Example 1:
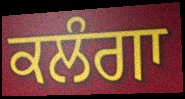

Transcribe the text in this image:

ਕਲੰਗਾ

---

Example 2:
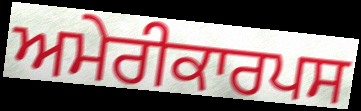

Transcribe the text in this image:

ਅਮੇਰੀਕਾਰਪਸ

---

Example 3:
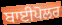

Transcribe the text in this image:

ਬਾਈਪੋਲਰ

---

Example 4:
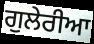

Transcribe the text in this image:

ਗੁਲੇਰੀਆ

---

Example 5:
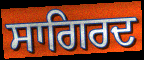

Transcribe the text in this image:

ਸਾਗਿਰਦ